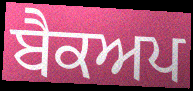
ਬੈਕਅਪ